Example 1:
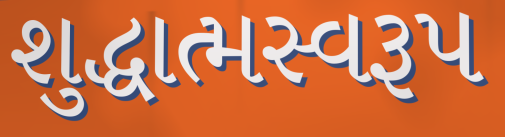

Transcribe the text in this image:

શુદ્ધાત્મસ્વરૂપ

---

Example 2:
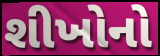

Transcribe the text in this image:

શીખોનો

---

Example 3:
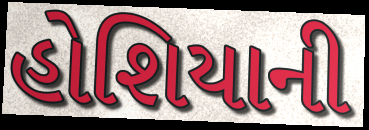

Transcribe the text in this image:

હોશિયાની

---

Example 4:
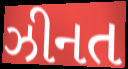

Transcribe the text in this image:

ઝીનત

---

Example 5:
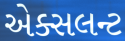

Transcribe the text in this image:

એક્સલન્ટ